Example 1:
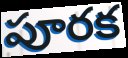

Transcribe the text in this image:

పూరక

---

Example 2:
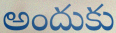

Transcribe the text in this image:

అందుకు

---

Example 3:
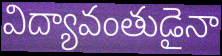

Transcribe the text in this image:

విద్యావంతుడైనా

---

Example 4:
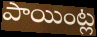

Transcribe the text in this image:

పాయింట్ల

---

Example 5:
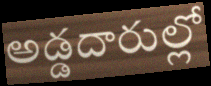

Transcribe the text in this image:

అడ్డదారుల్లో